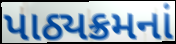
પાઠ્યક્રમનાં